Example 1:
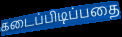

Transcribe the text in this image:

கடைப்பிடிப்பதை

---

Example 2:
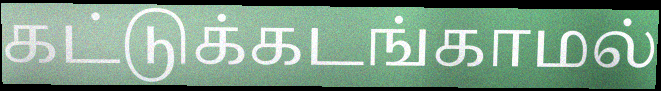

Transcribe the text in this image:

கட்டுக்கடங்காமல்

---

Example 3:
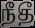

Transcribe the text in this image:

நீதீ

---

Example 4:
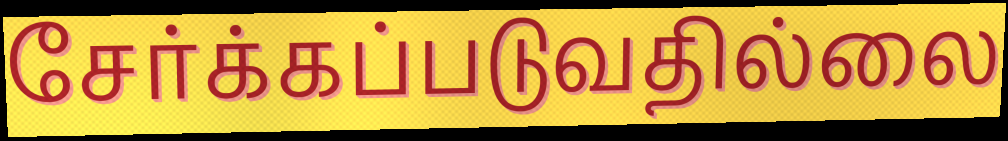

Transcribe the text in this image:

சேர்க்கப்படுவதில்லை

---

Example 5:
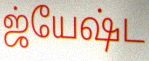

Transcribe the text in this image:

ஜ்யேஷ்ட